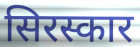
सिरस्कार